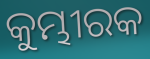
କୁମ୍ଭୀରକ